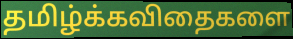
தமிழ்க்கவிதைகளை